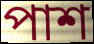
পাশ